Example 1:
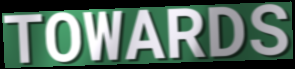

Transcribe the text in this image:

TOWARDS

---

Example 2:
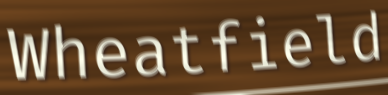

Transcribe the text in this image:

Wheatfield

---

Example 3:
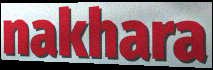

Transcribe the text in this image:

nakhara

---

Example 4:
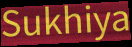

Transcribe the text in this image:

Sukhiya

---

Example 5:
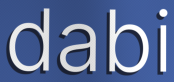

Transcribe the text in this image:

dabi